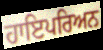
ਹਾਇਪਰਿਅਨ